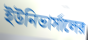
ইউনিভার্সালের